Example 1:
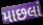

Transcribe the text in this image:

માછલાં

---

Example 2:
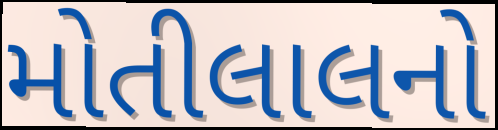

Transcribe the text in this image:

મોતીલાલનો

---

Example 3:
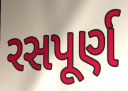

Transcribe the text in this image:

રસપૂર્ણ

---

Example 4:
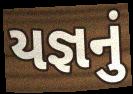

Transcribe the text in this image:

યજ્ઞનું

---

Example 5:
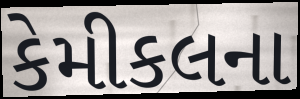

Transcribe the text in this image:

કેમીકલના